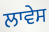
ਲਾਵੇਸ